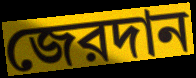
জেরদান